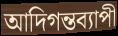
আদিগন্তব্যাপী